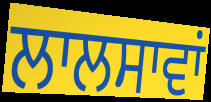
ਲਾਲਸਾਵਾਂ